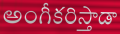
అంగీకరిస్తాడా